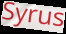
Syrus